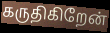
கருதிகிறேன்